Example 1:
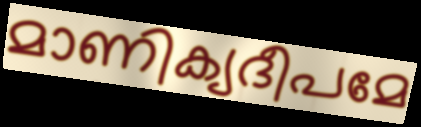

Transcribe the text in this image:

മാണിക്യദീപമേ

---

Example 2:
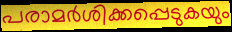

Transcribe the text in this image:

പരാമർശിക്കപ്പെടുകയും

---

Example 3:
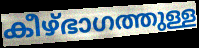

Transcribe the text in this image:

കീഴ്ഭാഗത്തുള്ള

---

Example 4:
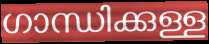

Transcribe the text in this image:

ഗാന്ധിക്കുള്ള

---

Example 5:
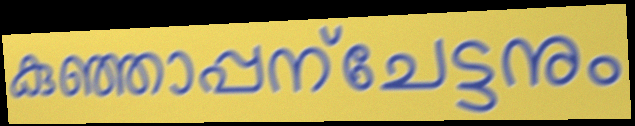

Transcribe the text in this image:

കുഞ്ഞാപ്പന്ചേട്ടനും